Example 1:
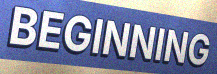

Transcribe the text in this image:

BEGINNING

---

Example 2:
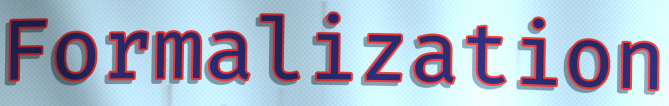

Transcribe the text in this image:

Formalization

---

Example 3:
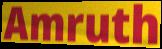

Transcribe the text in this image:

Amruth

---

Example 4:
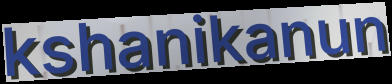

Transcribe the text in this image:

kshanikanun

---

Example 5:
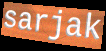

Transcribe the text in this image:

sarjak